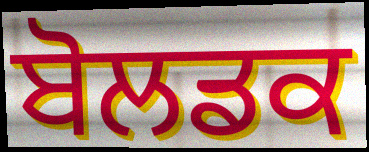
ਬੋਲਡਕ